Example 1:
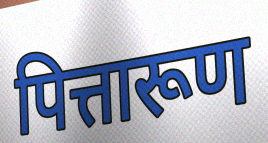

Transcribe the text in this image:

पित्तारूण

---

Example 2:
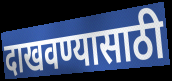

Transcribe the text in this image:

दाखवण्यासाठी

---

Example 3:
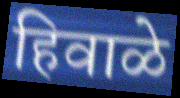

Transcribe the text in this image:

हिवाळे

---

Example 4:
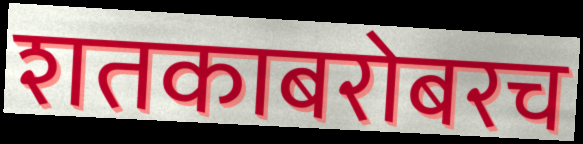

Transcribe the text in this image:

शतकाबरोबरच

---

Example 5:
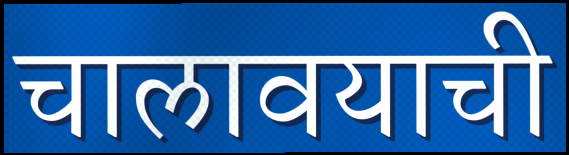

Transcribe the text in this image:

चालावयाची